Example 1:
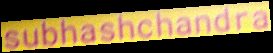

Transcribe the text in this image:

subhashchandra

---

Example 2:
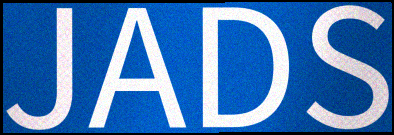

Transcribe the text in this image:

JADS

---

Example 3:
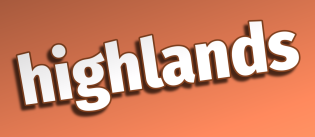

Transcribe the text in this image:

highlands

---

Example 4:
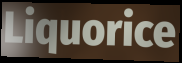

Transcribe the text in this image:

Liquorice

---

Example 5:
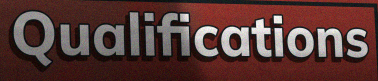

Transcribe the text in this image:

Qualifications